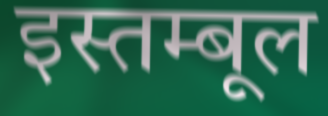
इस्तम्बूल